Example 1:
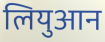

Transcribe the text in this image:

लियुआन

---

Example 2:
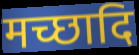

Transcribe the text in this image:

मच्छादि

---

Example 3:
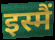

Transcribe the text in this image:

इस्मैं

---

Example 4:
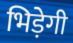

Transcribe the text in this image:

भिड़ेगी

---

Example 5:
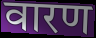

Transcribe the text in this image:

वारण